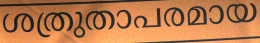
ശത്രുതാപരമായ